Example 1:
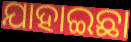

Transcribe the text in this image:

ଯାହାଇଛା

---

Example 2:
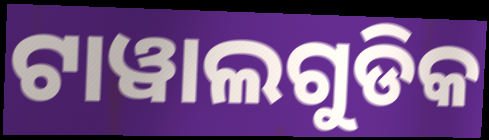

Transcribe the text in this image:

ଟାୱାଲଗୁଡିକ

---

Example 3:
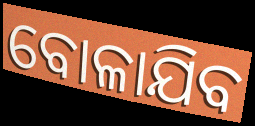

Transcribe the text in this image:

ବୋଳାଯିବ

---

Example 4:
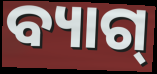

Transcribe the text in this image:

ବ୍ୟାଗ୍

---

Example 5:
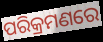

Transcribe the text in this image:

ପରିକ୍ରମଣରେ